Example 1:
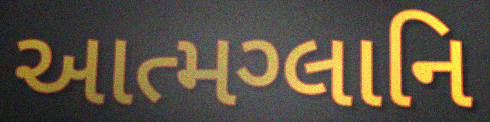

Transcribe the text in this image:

આત્મગ્લાનિ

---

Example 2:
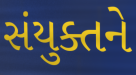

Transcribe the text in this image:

સંયુક્તને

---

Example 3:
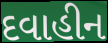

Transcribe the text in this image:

દવાહીન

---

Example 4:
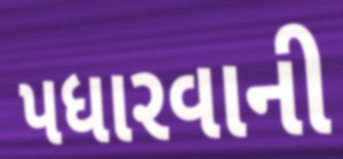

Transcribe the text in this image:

પધારવાની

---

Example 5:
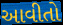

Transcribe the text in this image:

આવીતો